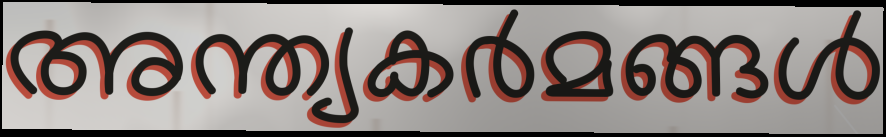
അന്ത്യകർമങ്ങൾ